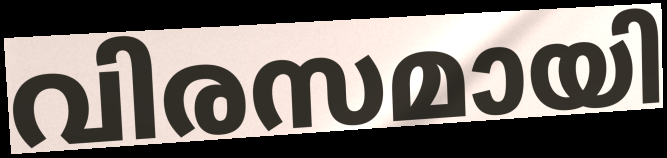
വിരസമായി